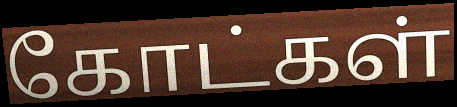
கோட்கள்